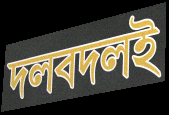
দলবদলই